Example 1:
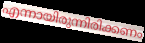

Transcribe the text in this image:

എന്നായിരുന്നിരിക്കണം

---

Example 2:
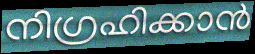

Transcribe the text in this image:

നിഗ്രഹിക്കാൻ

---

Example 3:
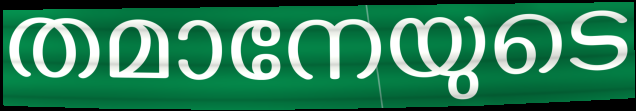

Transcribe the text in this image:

തമാനേയുടെ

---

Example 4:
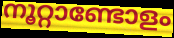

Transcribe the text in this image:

നൂറ്റാണ്ടോളം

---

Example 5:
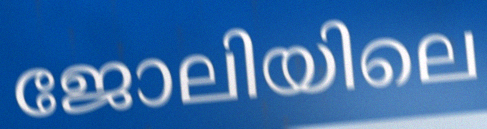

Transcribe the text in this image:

ജോലിയിലെ